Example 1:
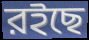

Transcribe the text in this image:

রইছে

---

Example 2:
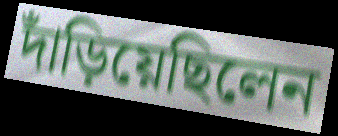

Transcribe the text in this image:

দাঁড়িয়েছিলেন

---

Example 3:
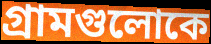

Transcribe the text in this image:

গ্রামগুলোকে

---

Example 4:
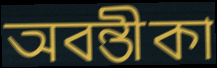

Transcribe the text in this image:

অবন্তীকা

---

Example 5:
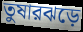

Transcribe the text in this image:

তুষারঝড়ে